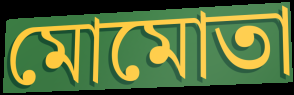
মোমোতা